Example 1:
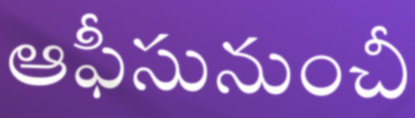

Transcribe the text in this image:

ఆఫీసునుంచీ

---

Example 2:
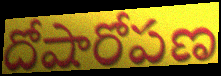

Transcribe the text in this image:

దోషారోపణ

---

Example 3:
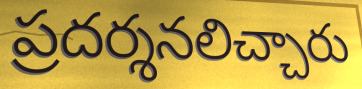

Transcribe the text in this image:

ప్రదర్శనలిచ్చారు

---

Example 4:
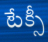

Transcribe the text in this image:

టేక్సీ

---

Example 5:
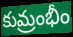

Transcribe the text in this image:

కుమ్రంభీం